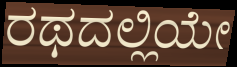
ರಥದಲ್ಲಿಯೇ